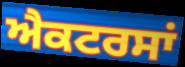
ਐਕਟਰਸਾਂ